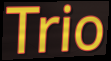
Trio